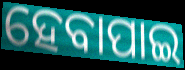
ହେବାପାଇ